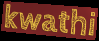
kwathi